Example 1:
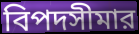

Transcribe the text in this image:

বিপদসীমার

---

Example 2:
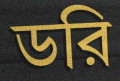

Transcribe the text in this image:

ডরি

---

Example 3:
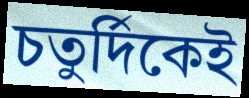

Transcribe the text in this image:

চতুর্দিকেই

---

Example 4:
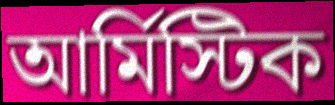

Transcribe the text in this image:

আর্মিস্টিক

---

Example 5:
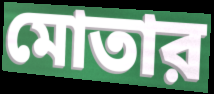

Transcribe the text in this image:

মোতার